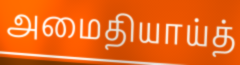
அமைதியாய்த்